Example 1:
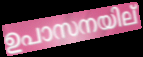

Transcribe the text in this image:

ഉപാസനയില്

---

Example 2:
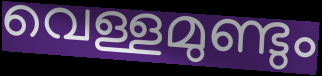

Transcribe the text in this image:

വെള്ളമുണ്ടും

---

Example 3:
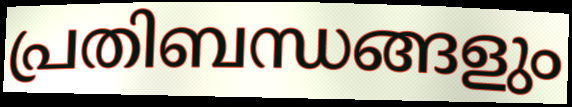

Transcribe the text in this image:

പ്രതിബന്ധങ്ങളും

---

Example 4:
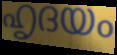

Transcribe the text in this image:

ഹൃദയം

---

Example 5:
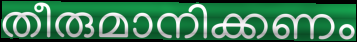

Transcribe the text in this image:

തീരുമാനിക്കണം